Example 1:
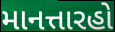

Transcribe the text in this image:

માનત્તારહો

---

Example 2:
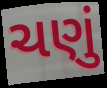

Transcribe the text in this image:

ચણું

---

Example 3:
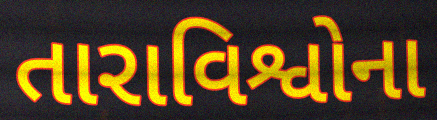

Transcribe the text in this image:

તારાવિશ્વોના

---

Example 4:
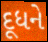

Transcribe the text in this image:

દૂધને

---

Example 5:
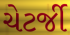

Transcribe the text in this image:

ચેટર્જી